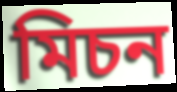
মিচন